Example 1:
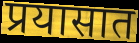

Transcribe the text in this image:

प्रयासात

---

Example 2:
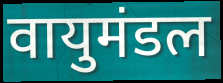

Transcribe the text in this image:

वायुमंडल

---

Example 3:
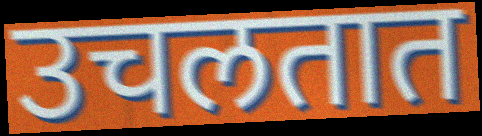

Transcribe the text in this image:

उचलतात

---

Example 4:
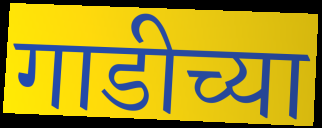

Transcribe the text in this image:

गाडीच्या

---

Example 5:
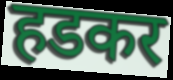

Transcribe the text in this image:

हडकर